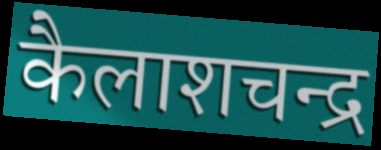
कैलाशचन्द्र